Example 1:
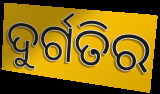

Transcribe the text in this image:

ଦୁର୍ଗତିର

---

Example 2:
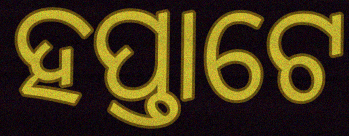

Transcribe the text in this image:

ହପ୍ତାଟେ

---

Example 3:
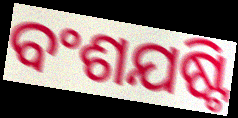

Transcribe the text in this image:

ବଂଶଯଷ୍ଟି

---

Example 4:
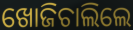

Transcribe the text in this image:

ଖୋଜିଚାଲିଲେ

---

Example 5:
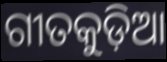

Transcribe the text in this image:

ଗୀତକୁଡ଼ିଆ